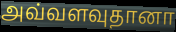
அவ்வளவுதானா